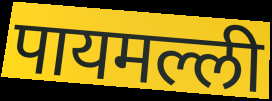
पायमल्ली